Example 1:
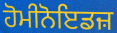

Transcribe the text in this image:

ਹੋਮੀਨੋਇਡਜ਼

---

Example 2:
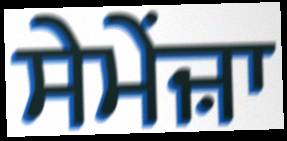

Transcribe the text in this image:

ਸੇਮੇਂਜ਼ਾ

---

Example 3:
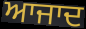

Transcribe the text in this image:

ਆਜਾਦ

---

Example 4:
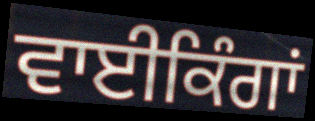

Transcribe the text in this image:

ਵਾਈਕਿੰਗਾਂ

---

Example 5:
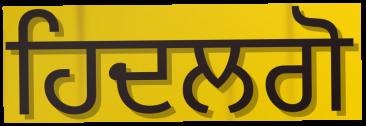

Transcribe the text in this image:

ਹਿਦਲਗੋ